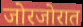
जोरजोरात